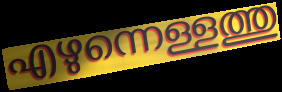
എഴുന്നെള്ളത്തു